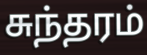
சுந்தரம்